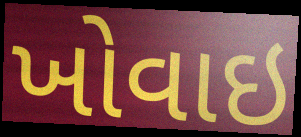
ખોવાઇ